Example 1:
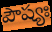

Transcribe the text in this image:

పౌష్యః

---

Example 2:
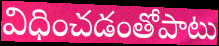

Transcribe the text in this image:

విధించడంతోపాటు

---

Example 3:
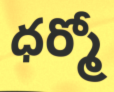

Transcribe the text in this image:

ధర్మో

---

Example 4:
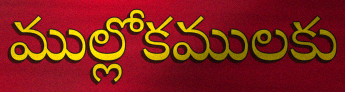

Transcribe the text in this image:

ముల్లోకములకు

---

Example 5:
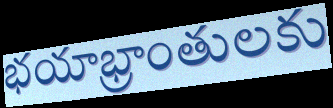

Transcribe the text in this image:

భయాభ్రాంతులకు